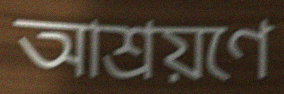
আশ্রয়ণে